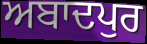
ਅਬਾਦਪੁਰ